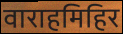
वाराहमिहिर